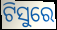
ଟିସୁରେ